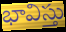
భావిస్తు